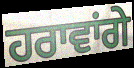
ਹਰਾਵਾਂਗੇ